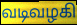
வடிவழகி